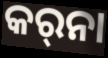
କର୍‌ନା